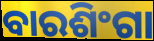
ବାରଶିଂଗା